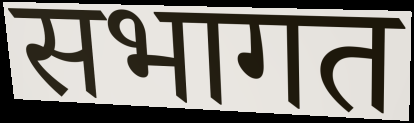
सभागत